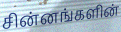
சின்னங்களின்